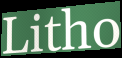
Litho